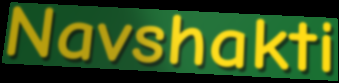
Navshakti